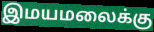
இமயமலைக்கு